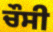
ਚੌਸੀ